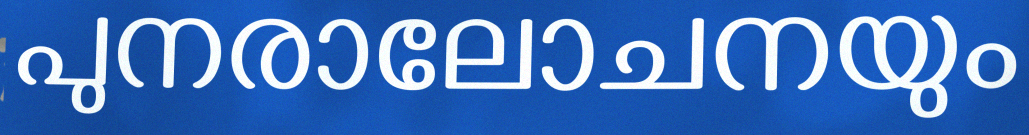
പുനരാലോചനയും